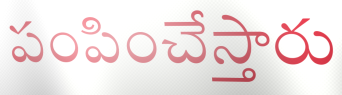
పంపించేస్తారు